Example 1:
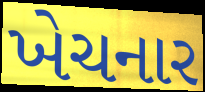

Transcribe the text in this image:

ખેચનાર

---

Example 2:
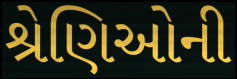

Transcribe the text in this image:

શ્રેણિઓની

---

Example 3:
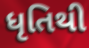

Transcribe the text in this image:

ધૃતિથી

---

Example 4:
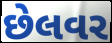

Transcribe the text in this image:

છેલવર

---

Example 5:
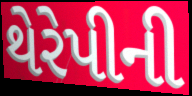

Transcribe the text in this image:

થેરેપીની